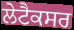
ਲੇਟੈਕਸਰ